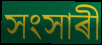
সংসাৰী